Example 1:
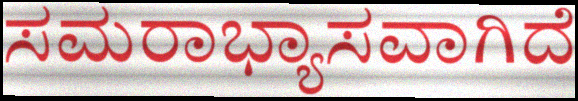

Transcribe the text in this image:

ಸಮರಾಭ್ಯಾಸವಾಗಿದೆ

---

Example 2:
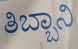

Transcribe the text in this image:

ತಿಬ್ಬಾನಿ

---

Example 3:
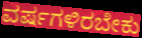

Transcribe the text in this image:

ವರ್ಷಗಳಿರಬೇಕು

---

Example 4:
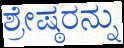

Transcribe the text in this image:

ಶ್ರೇಷ್ಠರನ್ನು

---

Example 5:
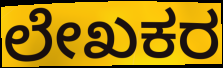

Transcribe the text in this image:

ಲೇಖಕರ